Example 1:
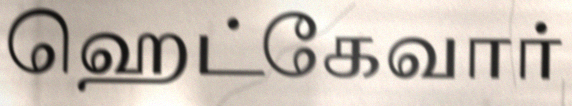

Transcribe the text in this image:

ஹெட்கேவார்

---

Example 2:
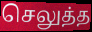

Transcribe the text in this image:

செலுத்த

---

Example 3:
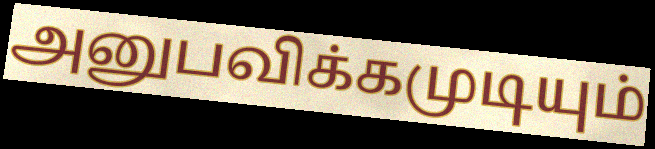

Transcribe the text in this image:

அனுபவிக்கமுடியும்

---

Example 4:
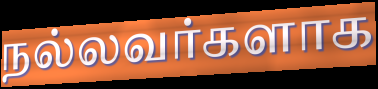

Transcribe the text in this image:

நல்லவர்களாக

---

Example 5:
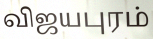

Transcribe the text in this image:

விஜயபுரம்